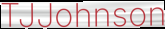
TJJohnson